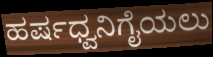
ಹರ್ಷಧ್ವನಿಗೈಯಲು